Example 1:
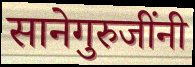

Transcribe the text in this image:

सानेगुरुजींनी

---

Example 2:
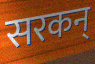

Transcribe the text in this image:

सरकन्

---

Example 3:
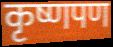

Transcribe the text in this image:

कृष्णपण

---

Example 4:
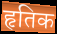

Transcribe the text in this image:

हृतिक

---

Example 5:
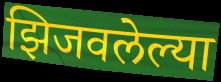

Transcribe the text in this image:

झिजवलेल्या